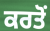
ਕਰਤੋਂ